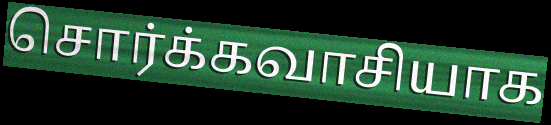
சொர்க்கவாசியாக